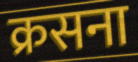
क्रसना